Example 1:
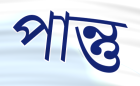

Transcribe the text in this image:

পান্তু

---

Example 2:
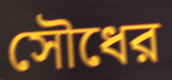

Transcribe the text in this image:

সৌধের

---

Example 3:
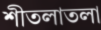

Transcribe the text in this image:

শীতলাতলা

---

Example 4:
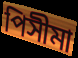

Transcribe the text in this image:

পিসীমা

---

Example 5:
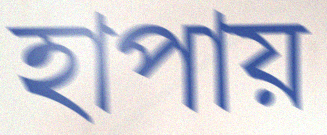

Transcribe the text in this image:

হাপায়